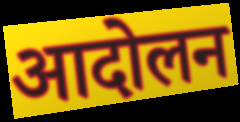
आदोलन